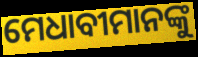
ମେଧାବୀମାନଙ୍କୁ